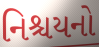
નિશ્ચયનો